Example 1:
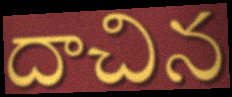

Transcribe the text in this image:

దాచిన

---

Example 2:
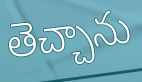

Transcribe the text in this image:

తెచ్చాను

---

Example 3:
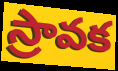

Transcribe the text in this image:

స్రావక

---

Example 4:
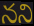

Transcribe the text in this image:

నని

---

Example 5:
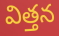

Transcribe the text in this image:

విత్తన